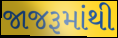
જાજરૂમાંથી